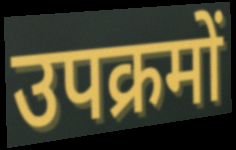
उपक्रमों